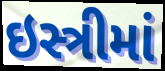
ઇસ્ત્રીમાં